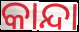
କାନ୍ଦା